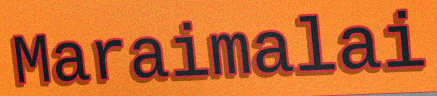
Maraimalai